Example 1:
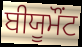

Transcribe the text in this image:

ਬੀਯੂਮੌਂਟ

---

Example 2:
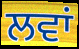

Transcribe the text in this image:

ਲਵਾਂ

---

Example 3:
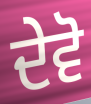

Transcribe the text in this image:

ਦੇਵੋ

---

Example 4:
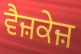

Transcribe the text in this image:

ਵੈਜ਼ਕੇਜ਼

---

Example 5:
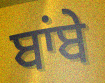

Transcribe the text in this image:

ਬਾਂਬੇ